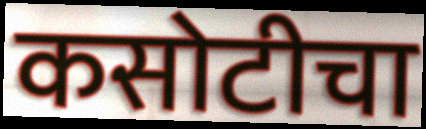
कसोटीचा